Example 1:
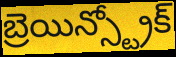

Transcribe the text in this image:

బ్రెయిన్స్ట్రోక్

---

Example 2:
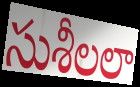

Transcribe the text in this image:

సుశీలలా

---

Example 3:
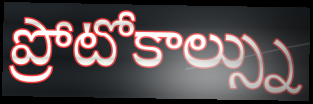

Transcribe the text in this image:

ప్రోటోకాల్స్ను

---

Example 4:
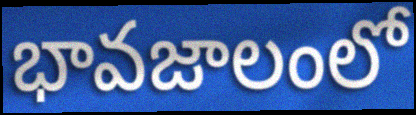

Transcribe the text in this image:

భావజాలంలో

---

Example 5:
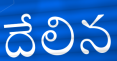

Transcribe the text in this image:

దేలిన